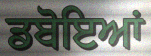
ਡਬੋਇਆਂ